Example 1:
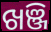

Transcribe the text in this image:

ଖଞ୍ଜି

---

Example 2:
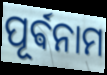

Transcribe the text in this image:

ପୂର୍ଵନାମ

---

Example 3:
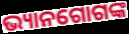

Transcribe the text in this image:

ଭ୍ୟାନଗୋଗଙ୍କ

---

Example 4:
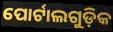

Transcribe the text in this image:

ପୋର୍ଟାଲଗୁଡ଼ିକ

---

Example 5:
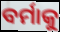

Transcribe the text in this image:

ବର୍ମାକୁ